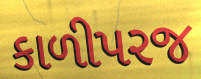
કાળીપરજ